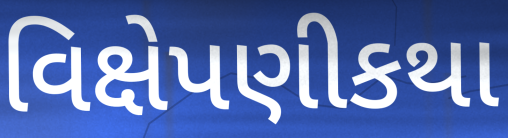
વિક્ષેપણીકથા